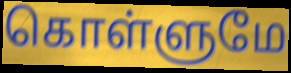
கொள்ளுமே